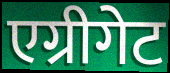
एग्रीगेट